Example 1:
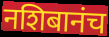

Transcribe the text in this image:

नशिबानंच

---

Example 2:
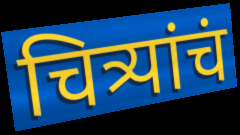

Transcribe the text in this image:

चित्र्यांचं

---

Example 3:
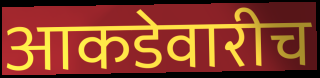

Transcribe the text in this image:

आकडेवारीच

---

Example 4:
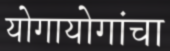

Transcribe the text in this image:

योगायोगांचा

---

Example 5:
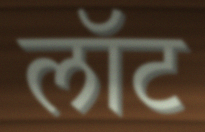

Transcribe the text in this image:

लॉट